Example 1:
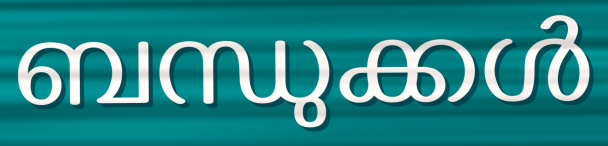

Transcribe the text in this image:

ബന്ധുക്കൾ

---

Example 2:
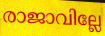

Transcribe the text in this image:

രാജാവില്ലേ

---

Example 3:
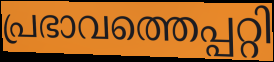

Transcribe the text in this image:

പ്രഭാവത്തെപ്പറ്റി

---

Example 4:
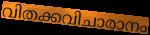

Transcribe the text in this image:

വിതക്കവിചാരാനം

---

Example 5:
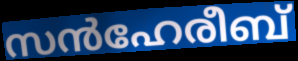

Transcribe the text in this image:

സൻഹേരീബ്